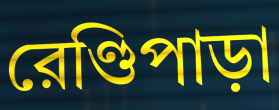
রেণ্ডিপাড়া